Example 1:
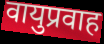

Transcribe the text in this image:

वायुप्रवाह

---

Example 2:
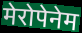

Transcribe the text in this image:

मेरोपेनेम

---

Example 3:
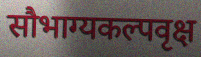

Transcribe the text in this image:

सौभाग्यकल्पवृक्ष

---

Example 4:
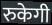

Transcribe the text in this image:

रुकेगी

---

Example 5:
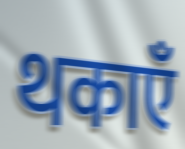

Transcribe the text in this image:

थकाएँ